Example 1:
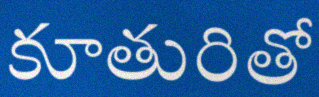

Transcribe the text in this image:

కూతురితో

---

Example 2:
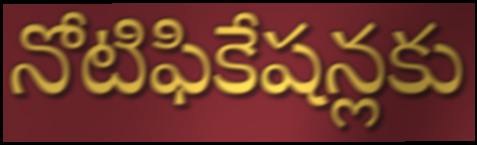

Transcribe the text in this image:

నోటిఫికేషన్లకు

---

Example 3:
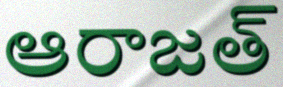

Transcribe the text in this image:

ఆరాజత్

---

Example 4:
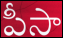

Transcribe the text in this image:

పీసా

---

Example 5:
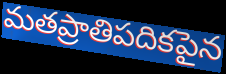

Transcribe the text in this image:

మతప్రాతిపదికపైన